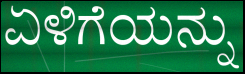
ಏಳಿಗೆಯನ್ನು